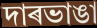
দাৰভাঙা